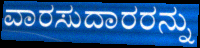
ವಾರಸುದಾರರನ್ನು